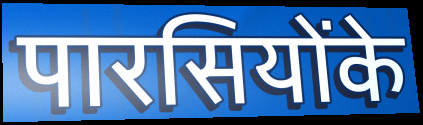
पारसियोंके